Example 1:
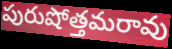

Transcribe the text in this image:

పురుషోత్తమరావు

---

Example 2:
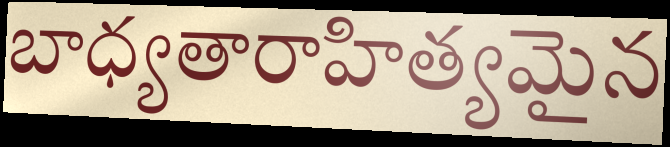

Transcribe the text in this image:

బాధ్యతారాహిత్యమైన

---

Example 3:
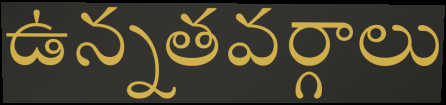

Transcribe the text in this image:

ఉన్నతవర్గాలు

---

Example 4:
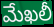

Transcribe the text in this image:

మేఖలీ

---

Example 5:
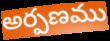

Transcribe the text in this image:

అర్పణము